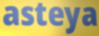
asteya